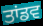
ਤਾਂਡਵ